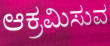
ಆಕ್ರಮಿಸುವ